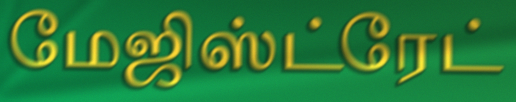
மேஜிஸ்ட்ரேட்